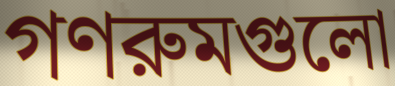
গণরুমগুলো